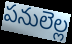
పనులెల్ల